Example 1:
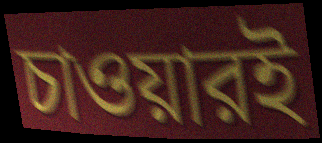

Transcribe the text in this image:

চাওয়ারই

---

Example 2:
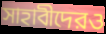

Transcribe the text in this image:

সাহাবীদেরও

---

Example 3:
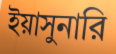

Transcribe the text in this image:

ইয়াসুনারি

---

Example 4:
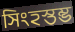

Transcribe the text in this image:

সিংহস্তম্ভ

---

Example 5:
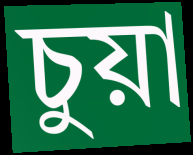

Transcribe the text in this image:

চুয়া